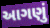
આગણું